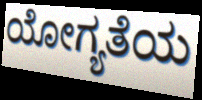
ಯೋಗ್ಯತೆಯ